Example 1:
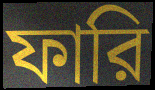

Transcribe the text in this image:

ফারি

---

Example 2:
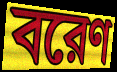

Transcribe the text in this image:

বরেণ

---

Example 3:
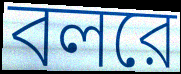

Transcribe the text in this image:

বলরে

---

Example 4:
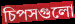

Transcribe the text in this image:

চিপসগুলো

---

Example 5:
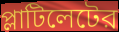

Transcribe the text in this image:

প্লাটিলেটের